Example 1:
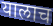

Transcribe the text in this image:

यालाच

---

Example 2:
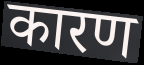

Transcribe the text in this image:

कारण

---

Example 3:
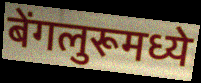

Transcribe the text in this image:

बेंगलुरूमध्ये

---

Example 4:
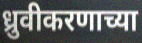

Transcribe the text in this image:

ध्रुवीकरणाच्या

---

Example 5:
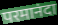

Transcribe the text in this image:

परमानंदा